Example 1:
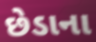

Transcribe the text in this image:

છેડાના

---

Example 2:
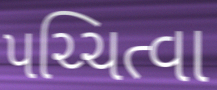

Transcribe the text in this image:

પચ્ચિત્વા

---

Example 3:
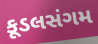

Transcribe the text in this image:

કૂડલસંગમ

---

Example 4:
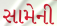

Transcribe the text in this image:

સામેની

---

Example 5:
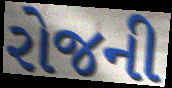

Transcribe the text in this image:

રોજની